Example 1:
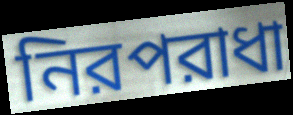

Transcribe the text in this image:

নিরপরাধা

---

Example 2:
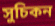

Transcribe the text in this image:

সুচিকন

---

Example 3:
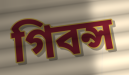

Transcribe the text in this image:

গিবন্স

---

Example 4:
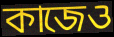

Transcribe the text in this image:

কাজেও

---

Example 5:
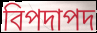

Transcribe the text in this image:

বিপদাপদ